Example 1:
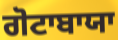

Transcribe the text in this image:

ਗੋਟਾਬਾਯਾ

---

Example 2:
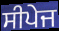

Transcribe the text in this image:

ਸੀਪੇਜ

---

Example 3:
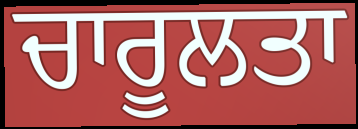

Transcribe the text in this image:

ਚਾਰੂਲਤਾ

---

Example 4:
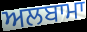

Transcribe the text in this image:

ਅਲਬਾਮਾ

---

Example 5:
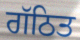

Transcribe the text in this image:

ਗੱਠਿਤ